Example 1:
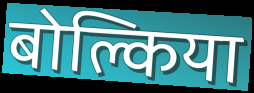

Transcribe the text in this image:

बोल्किया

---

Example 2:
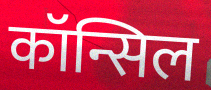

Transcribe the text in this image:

कॉन्सिल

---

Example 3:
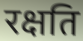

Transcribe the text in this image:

रक्षति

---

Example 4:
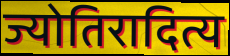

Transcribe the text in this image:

ज्योतिरादित्य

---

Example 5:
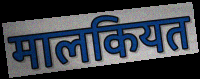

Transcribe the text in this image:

मालकियत